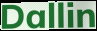
Dallin